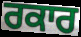
ਰਕਾਰ